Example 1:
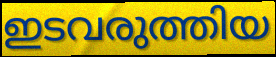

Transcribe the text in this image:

ഇടവരുത്തിയ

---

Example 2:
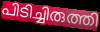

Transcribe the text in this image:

പിടിച്ചിരുത്തി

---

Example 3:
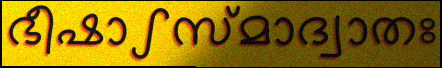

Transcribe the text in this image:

ഭീഷാഽസ്മാദ്വാതഃ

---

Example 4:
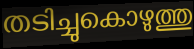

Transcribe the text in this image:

തടിച്ചുകൊഴുത്തു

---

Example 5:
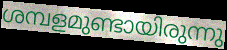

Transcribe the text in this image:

ശമ്പളമുണ്ടായിരുന്നു